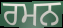
ਰਮਨ